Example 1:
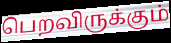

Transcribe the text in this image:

பெறவிருக்கும்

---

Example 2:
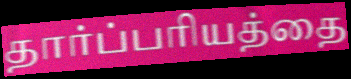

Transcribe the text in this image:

தார்ப்பரியத்தை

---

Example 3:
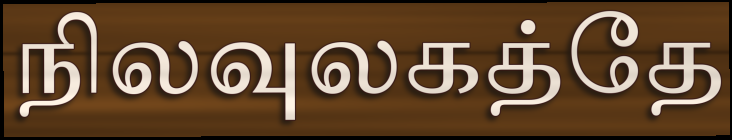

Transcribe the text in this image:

நிலவுலகத்தே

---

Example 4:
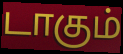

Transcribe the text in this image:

டாகும்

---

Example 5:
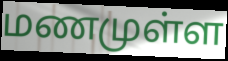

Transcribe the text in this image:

மணமுள்ள